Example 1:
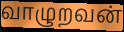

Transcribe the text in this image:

வாழுறவன்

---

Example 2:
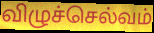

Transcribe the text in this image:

விழுச்செல்வம்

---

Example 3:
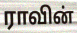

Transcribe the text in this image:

ராவின்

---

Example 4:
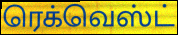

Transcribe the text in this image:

ரெக்வெஸ்ட்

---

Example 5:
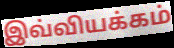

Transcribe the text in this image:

இவ்வியக்கம்